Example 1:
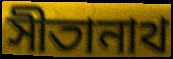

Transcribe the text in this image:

সীতানাথ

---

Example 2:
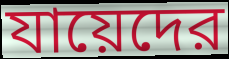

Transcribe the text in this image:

যায়েদের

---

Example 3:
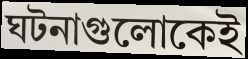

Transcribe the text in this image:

ঘটনাগুলোকেই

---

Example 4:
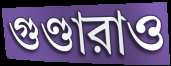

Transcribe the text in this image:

গুণ্ডারাও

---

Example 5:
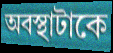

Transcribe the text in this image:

অবস্থাটাকে